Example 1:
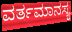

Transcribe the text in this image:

ವರ್ತಮಾನಸ್ಯ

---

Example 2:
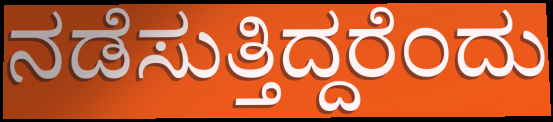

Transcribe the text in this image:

ನಡೆಸುತ್ತಿದ್ದರೆಂದು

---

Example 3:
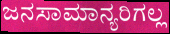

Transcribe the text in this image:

ಜನಸಾಮಾನ್ಯರಿಗಲ್ಲ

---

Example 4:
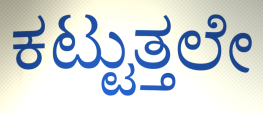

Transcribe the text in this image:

ಕಟ್ಟುತ್ತಲೇ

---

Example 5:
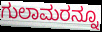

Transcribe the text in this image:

ಗುಲಾಮರನ್ನೂ